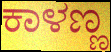
ಕಾಳಣ್ಣ